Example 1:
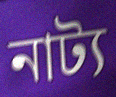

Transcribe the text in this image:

নাট্য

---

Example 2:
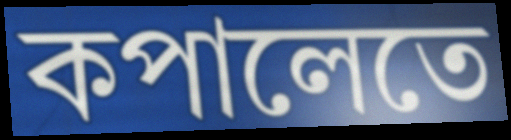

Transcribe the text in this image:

কপালেতে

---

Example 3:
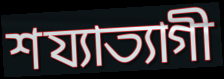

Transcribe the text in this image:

শয্যাত্যাগী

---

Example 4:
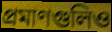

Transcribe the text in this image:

প্রমাণগুলিও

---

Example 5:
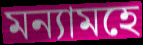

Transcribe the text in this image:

মন্যামহে